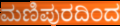
ಮಣಿಪುರದಿಂದ